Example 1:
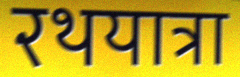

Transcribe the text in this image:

रथयात्रा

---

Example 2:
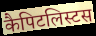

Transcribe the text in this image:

कैपिटलिस्टस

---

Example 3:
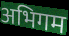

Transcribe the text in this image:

अभिगम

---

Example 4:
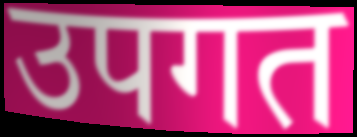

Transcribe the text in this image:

उपगत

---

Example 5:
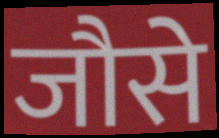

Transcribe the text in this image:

जौसे